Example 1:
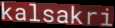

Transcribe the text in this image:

kalsakri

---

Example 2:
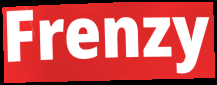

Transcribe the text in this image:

Frenzy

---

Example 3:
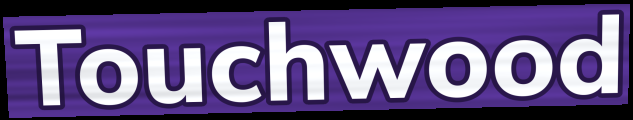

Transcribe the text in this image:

Touchwood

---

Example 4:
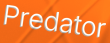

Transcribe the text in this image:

Predator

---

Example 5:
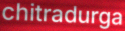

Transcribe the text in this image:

chitradurga